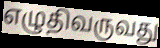
எழுதிவருவது